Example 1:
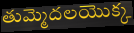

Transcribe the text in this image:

తుమ్మెదలయొక్క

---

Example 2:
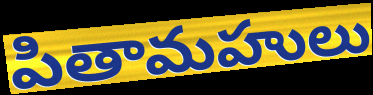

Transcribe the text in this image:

పితామహులు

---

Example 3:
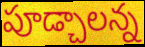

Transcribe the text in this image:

పూడ్చాలన్న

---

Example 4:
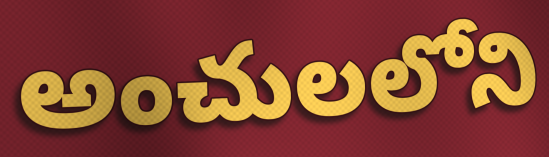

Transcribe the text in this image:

అంచులలోని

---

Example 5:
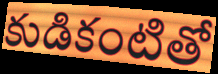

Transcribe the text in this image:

కుడికంటితో